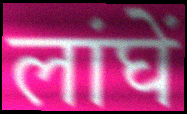
लांघें